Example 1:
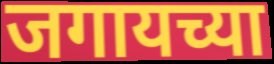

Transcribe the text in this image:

जगायच्या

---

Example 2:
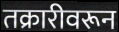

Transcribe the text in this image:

तक्रारीवरून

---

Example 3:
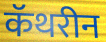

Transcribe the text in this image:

कॅथरीन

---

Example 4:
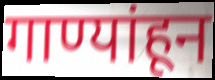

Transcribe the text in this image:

गाण्यांहून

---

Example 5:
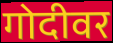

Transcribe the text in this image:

गोदीवर